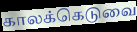
காலக்கெடுவை